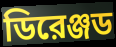
ডিরেঞ্জড